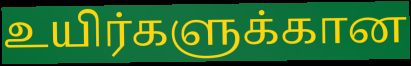
உயிர்களுக்கான